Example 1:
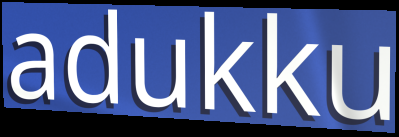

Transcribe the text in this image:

adukku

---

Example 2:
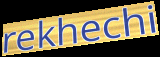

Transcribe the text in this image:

rekhechi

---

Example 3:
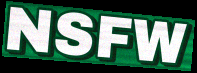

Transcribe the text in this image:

NSFW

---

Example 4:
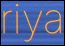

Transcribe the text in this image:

riya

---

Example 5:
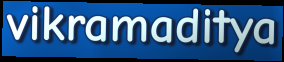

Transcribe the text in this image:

vikramaditya